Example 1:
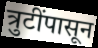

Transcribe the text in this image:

त्रुटींपासून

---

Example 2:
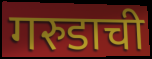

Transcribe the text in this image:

गरुडाची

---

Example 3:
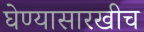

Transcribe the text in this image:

घेण्यासारखीच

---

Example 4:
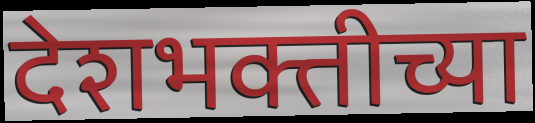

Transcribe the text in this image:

देशभक्तीच्या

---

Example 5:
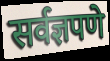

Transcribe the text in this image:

सर्वज्ञपणे